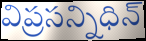
విప్రసన్నిధిన్